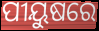
ପୀୟୁଷରେ